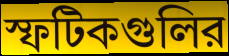
স্ফটিকগুলির